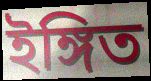
ইঙ্গিত